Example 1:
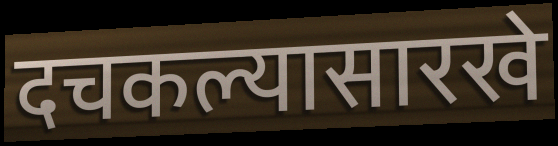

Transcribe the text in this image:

दचकल्यासारखे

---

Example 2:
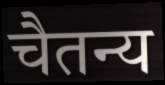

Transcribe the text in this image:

चैतन्य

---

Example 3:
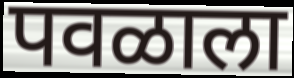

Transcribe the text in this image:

पवळाला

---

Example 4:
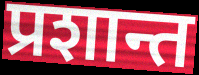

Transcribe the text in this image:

प्रशान्त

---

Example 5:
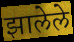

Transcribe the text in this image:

झालेले